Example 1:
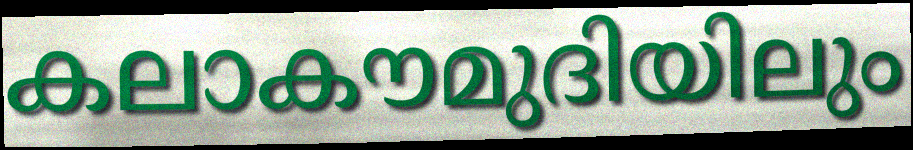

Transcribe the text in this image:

കലാകൗമുദിയിലും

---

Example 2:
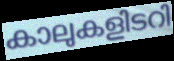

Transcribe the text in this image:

കാലുകളിടറി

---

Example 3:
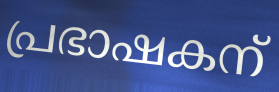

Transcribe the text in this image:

പ്രഭാഷകന്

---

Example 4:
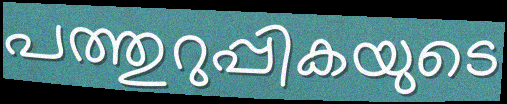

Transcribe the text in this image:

പത്തുറുപ്പികയുടെ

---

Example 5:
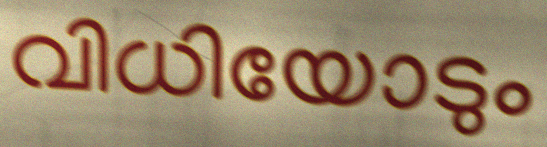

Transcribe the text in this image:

വിധിയോടും